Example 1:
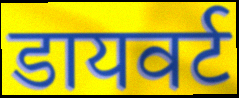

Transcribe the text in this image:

डायवर्ट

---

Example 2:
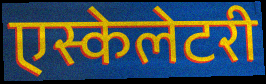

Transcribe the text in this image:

एस्केलेटरी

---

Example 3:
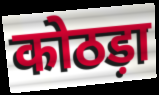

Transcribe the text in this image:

कोठड़ा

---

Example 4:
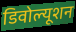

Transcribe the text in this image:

डिवोल्यूशन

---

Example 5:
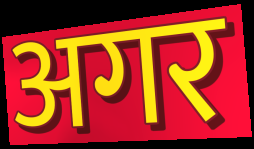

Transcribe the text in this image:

अगर